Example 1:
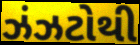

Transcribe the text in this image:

ઝંઝટોથી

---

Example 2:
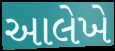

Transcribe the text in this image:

આલેખે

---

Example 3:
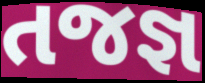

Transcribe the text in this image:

તજજ્ઞ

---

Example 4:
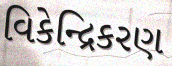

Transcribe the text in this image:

વિકેન્દ્રિકરણ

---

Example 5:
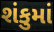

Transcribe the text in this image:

શંકુમાં